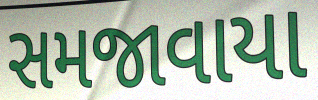
સમજાવાયા